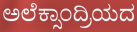
ಅಲೆಕ್ಸಾಂದ್ರಿಯದ